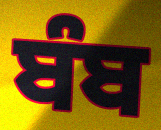
ਬੰਬ